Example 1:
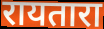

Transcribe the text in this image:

रायतारा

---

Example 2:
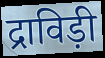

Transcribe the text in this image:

द्राविड़ी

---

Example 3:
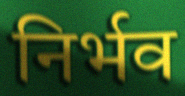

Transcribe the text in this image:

निर्भव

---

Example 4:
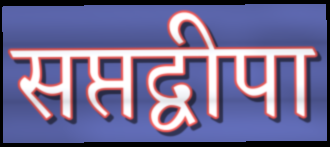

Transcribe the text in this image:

सप्तद्वीपा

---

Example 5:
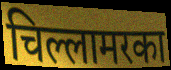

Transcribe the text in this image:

चिल्लामरका